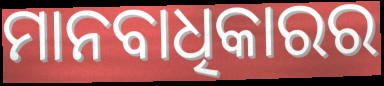
ମାନବାଧିକାରର